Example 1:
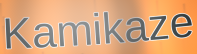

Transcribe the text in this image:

Kamikaze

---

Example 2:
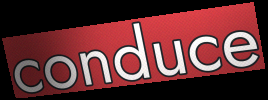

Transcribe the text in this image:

conduce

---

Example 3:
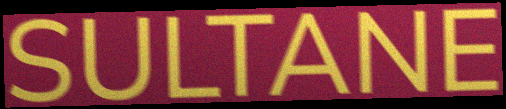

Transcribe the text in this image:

SULTANE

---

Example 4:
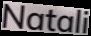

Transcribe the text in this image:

Natali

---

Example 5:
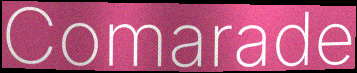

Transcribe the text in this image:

Comarade